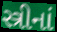
સ્ત્રીનાં